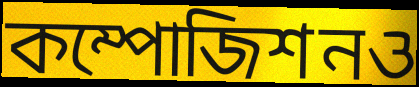
কম্পোজিশনও